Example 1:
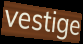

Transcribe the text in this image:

vestige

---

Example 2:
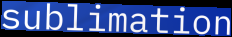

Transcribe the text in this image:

sublimation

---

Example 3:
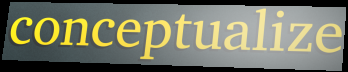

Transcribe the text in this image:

conceptualize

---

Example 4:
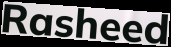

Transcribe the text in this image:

Rasheed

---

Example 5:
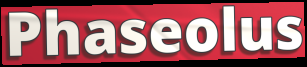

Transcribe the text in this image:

Phaseolus